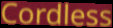
Cordless